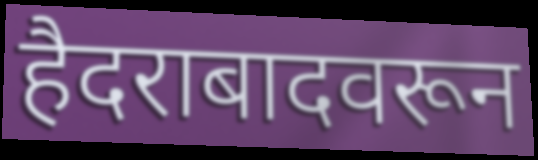
हैदराबादवरून